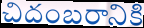
చిదంబరానికి